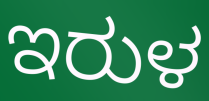
ಇರುಳ